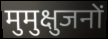
मुमुक्षुजनों